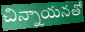
చిన్నాయనతో